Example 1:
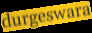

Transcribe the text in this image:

durgeswara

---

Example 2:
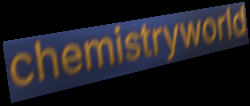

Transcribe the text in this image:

chemistryworld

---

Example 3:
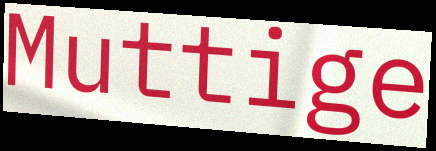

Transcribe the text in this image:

Muttige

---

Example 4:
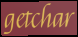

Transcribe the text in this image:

getchar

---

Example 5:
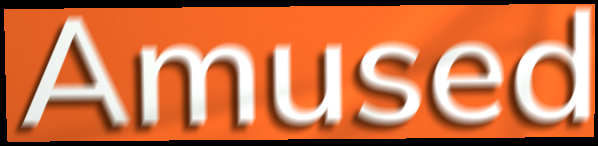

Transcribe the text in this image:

Amused